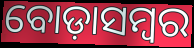
ବୋଡ଼ାସମ୍ବର